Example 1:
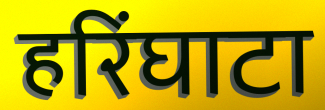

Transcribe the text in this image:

हरिंघाटा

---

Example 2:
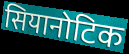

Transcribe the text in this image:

सियानोटिक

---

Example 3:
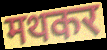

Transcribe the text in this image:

मथकर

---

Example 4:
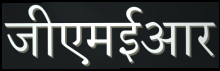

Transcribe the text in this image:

जीएमईआर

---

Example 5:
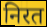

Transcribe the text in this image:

निरत